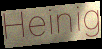
Heinig